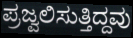
ಪ್ರಜ್ವಲಿಸುತ್ತಿದ್ದವು